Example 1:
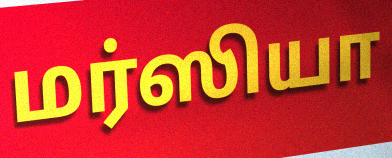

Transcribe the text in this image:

மர்ஸியா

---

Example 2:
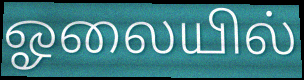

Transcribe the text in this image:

ஓலையில்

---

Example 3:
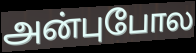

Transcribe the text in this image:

அன்புபோல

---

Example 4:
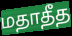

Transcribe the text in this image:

மதாதீத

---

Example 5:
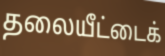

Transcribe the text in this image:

தலையீட்டைக்